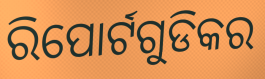
ରିପୋର୍ଟଗୁଡିକର